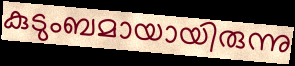
കുടുംബമായായിരുന്നു